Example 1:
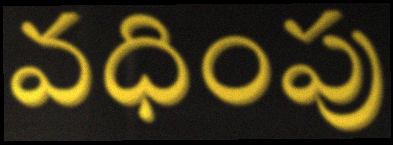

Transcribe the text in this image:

వధింపు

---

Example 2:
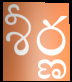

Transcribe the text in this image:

శీర్ణ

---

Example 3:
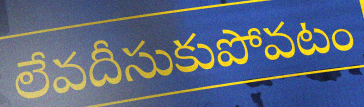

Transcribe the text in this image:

లేవదీసుకుపోవటం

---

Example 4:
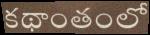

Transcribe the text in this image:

కథాంతంలో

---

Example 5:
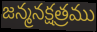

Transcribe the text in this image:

జన్మనక్షత్రము